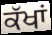
ਕੱਖਾਂ